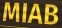
MIAB